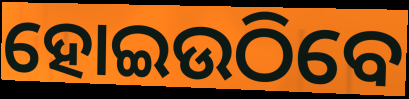
ହୋଇଉଠିବେ